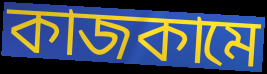
কাজকামে